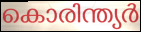
കൊരിന്ത്യർ